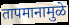
तापमानामुळे